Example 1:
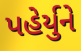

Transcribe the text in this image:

પહેર્યુને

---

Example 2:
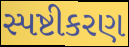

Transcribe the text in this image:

સ્પષ્ટીકરણ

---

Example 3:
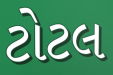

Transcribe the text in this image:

ટોટલ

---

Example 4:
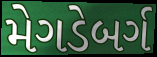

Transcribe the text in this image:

મેગડેબર્ગ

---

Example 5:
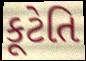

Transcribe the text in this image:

કૂટેતિ